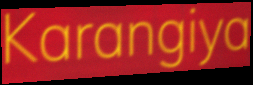
Karangiya